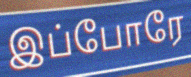
இப்போரே